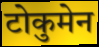
टोकुमेन